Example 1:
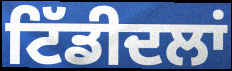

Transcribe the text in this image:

ਟਿੱਡੀਦਲਾਂ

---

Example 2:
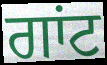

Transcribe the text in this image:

ਗਾਂਟ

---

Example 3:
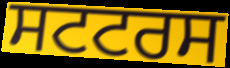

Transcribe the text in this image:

ਸਟਟਰਸ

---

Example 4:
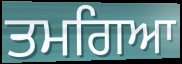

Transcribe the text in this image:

ਤਮਗਿਆ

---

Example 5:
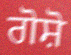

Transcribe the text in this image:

ਗੋਸ਼ੋ